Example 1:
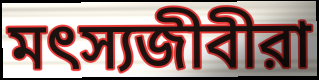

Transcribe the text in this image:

মৎস্যজীবীরা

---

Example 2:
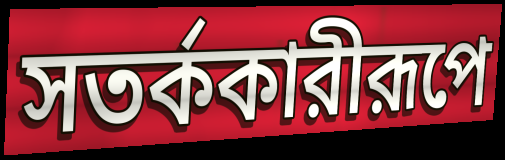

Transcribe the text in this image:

সতর্ককারীরূপে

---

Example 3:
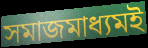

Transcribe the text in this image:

সমাজমাধ্যমই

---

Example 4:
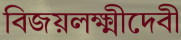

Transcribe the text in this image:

বিজয়লক্ষ্মীদেবী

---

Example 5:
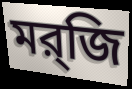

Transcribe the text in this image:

মর্‌জি